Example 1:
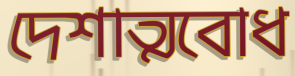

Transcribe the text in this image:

দেশাত্মবোধ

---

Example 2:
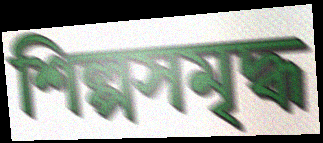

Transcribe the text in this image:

শিল্পসমৃদ্ধ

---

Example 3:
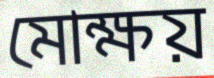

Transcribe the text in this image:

মোক্ষয়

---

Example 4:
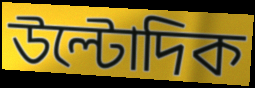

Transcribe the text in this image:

উল্টোদিক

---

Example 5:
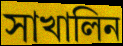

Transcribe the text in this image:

সাখালিন